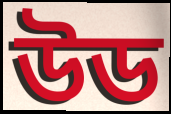
উড